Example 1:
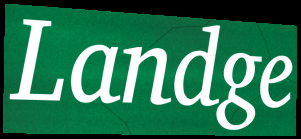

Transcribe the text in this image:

Landge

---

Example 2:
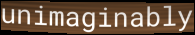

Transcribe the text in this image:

unimaginably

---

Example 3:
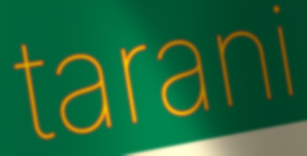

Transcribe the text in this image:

tarani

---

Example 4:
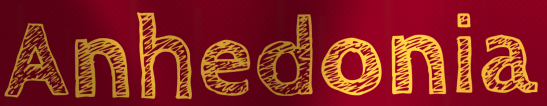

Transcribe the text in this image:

Anhedonia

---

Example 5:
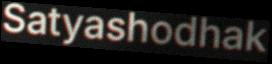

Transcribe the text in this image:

Satyashodhak